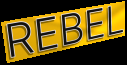
REBEL